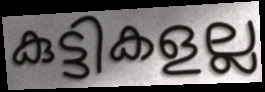
കുട്ടികളല്ല